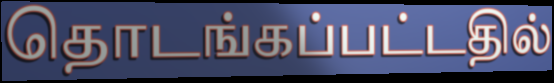
தொடங்கப்பட்டதில்